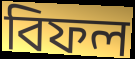
বিফল